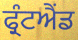
ਫ੍ਰੰਟਐਂਡ